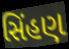
સિંહણ